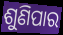
ଶୁଣିପାର